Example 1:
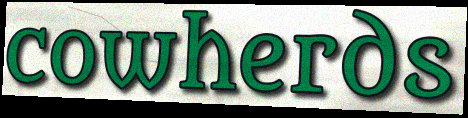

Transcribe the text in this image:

cowherds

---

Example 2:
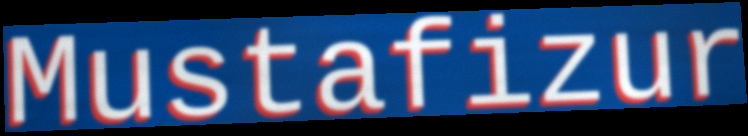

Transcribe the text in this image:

Mustafizur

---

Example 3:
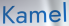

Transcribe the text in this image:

Kamel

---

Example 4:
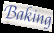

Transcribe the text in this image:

Baking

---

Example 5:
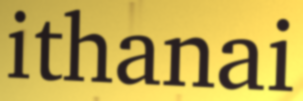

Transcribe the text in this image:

ithanai